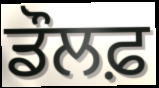
ਡੌਲਫ਼